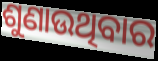
ଶୁଣାଉଥିବାର